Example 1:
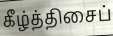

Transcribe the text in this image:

கீழ்த்திசைப்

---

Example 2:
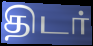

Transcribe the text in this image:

திடர்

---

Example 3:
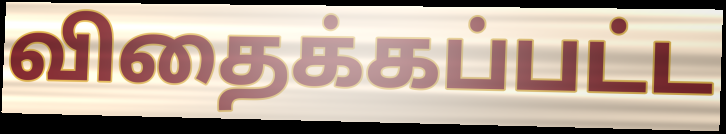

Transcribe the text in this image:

விதைக்கப்பட்ட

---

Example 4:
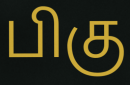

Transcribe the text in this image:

பிகு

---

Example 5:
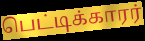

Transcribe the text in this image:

பெட்டிக்காரர்